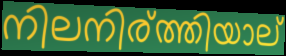
നിലനിര്ത്തിയാല്